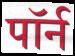
पॉर्न